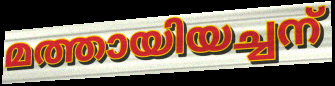
മത്തായിയച്ചന്